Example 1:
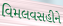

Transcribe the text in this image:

વિમલવસહીને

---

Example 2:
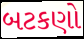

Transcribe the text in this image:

બટકણો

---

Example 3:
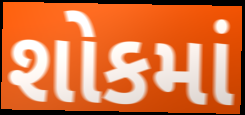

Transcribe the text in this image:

શોકમાં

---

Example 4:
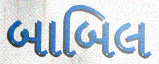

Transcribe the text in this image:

બાબિલ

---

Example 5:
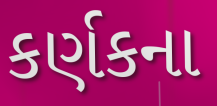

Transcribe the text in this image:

કર્ણકના